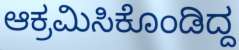
ಆಕ್ರಮಿಸಿಕೊಂಡಿದ್ದ